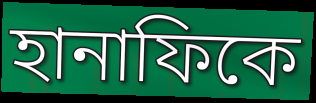
হানাফিকে